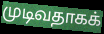
முடிவதாகக்